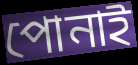
পোনাই